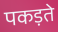
पकड़ते